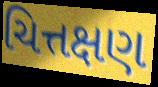
ચિત્તક્ષણ